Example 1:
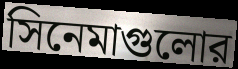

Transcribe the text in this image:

সিনেমাগুলোর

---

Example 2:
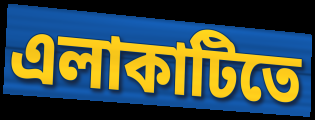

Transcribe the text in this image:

এলাকাটিতে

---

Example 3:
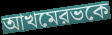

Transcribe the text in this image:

আখমেরভকে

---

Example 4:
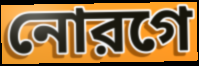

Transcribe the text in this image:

নোরগে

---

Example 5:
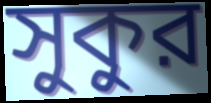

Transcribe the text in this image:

সুকুর